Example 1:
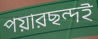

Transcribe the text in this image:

পয়ারছন্দই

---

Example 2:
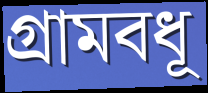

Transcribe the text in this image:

গ্রামবধূ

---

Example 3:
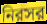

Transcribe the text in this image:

নিরসর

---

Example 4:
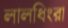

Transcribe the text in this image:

লালধিংরা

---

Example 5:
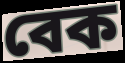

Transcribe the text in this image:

বেক